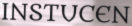
INSTUCEN